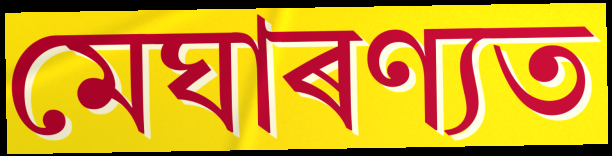
মেঘাৰণ্যত